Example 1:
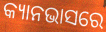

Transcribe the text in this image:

କ୍ୟାନଭାସରେ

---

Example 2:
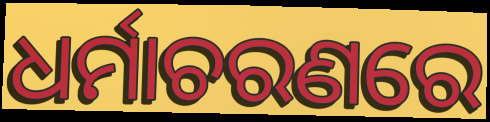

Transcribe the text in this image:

ଧର୍ମାଚରଣରେ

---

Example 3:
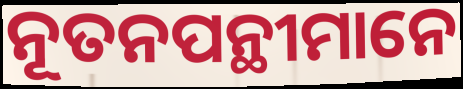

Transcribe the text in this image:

ନୂତନପନ୍ଥୀମାନେ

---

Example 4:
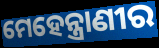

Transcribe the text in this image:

ମେହେନ୍ତ୍ରାଣୀର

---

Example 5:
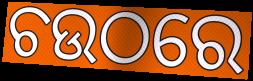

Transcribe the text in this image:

ଚଉଠରେ